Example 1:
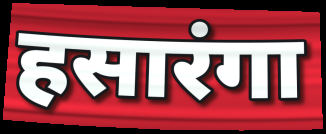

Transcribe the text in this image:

हसारंगा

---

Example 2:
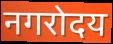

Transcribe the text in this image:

नगरोदय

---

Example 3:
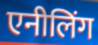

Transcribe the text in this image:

एनीलिंग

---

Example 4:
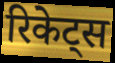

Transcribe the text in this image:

रिकेट्स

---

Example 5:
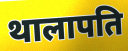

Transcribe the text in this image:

थालापति